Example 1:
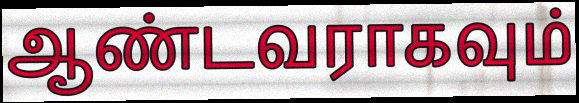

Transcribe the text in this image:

ஆண்டவராகவும்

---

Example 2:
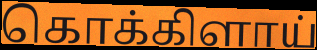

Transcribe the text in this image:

கொக்கிளாய்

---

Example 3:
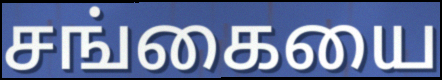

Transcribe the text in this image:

சங்கையை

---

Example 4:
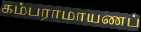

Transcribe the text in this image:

கம்பராமாயணப்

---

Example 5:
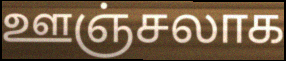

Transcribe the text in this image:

ஊஞ்சலாக